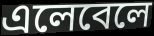
এলেবেলে